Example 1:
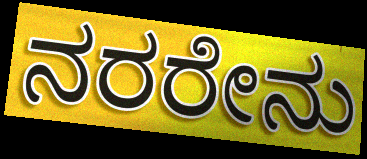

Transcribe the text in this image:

ನರರೇನು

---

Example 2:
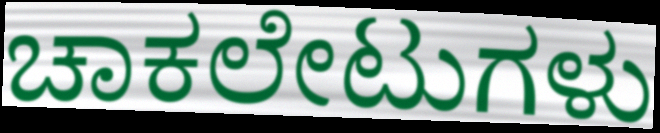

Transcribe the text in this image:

ಚಾಕಲೇಟುಗಳು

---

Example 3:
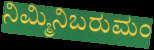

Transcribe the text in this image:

ನಿಮ್ಮಿನಿಬರುಮಂ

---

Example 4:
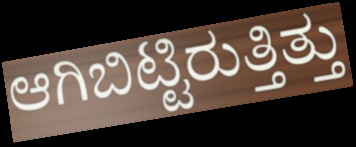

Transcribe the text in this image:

ಆಗಿಬಿಟ್ಟಿರುತ್ತಿತ್ತು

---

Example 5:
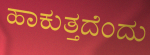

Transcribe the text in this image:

ಹಾಕುತ್ತದೆಂದು